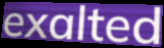
exalted